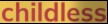
childless